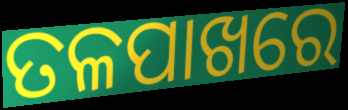
ତଳପାଖରେ